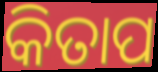
କିତାପ